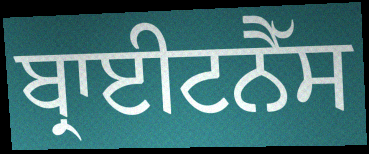
ਬ੍ਰਾਈਟਨੈੱਸ